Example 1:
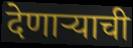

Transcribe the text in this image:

देणाऱ्याची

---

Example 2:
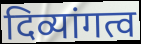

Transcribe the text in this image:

दिव्यांगत्व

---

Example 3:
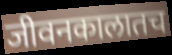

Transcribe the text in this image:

जीवनकालातच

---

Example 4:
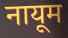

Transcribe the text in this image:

नायूम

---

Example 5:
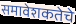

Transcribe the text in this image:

समावेशकतेचे